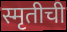
स्मृतीची